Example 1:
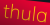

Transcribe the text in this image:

thula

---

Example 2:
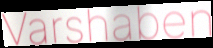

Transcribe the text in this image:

Varshaben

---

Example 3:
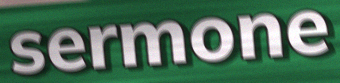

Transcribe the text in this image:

sermone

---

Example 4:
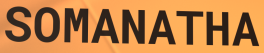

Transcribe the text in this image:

SOMANATHA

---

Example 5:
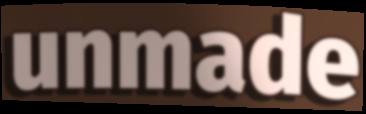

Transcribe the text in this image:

unmade